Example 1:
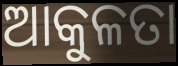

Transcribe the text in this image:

ଆକୁଳତା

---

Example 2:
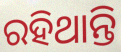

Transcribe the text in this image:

ରହିଥାନ୍ତି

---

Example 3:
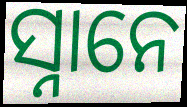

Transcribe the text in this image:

ସ୍ନାନେ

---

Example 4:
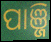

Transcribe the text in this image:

ପାଞ୍ଜି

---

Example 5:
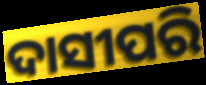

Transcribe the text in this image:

ଦାସୀପରି